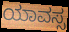
ಯಾವಸ್ಸ